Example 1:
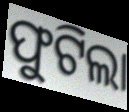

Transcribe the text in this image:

ଫୁଟିଲା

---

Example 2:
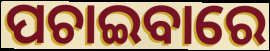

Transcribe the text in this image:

ପଚାଇବାରେ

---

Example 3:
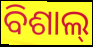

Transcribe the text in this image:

ବିଶାଲ୍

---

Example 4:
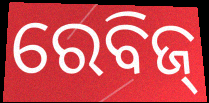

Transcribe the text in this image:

ରେବିଜ୍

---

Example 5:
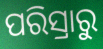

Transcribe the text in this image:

ପରିସ୍ରାରୁ